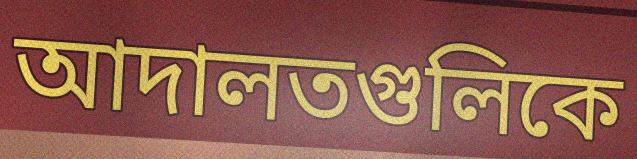
আদালতগুলিকে